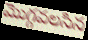
మొగ్గవలసిన